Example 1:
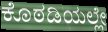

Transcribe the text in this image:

ಕೊಠಡಿಯಲ್ಲೇ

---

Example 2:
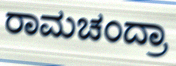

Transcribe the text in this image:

ರಾಮಚಂದ್ರಾ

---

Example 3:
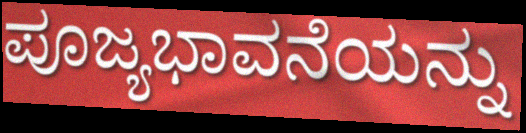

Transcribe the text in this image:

ಪೂಜ್ಯಭಾವನೆಯನ್ನು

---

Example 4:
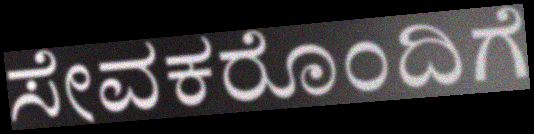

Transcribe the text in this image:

ಸೇವಕರೊಂದಿಗೆ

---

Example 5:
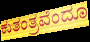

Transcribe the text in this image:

ಕುತಂತ್ರವೆಂದೂ